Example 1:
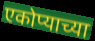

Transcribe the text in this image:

एकोप्याच्या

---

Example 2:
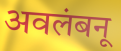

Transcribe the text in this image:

अवलंबनू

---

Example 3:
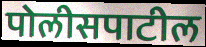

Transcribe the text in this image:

पोलीसपाटील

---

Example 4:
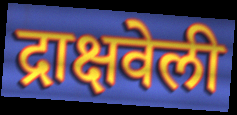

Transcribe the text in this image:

द्राक्षवेली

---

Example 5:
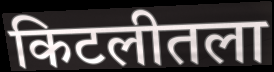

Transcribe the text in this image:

किटलीतला